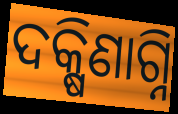
ଦକ୍ଷିଣାଗ୍ନି